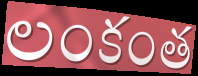
లంకంత